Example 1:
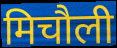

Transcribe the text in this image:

मिचौली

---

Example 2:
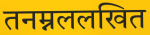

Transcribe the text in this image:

तनम्नललखित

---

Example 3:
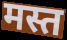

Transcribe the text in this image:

मस्त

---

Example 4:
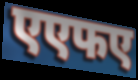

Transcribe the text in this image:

एएफए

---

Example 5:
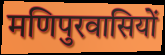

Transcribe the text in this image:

मणिपुरवासियों